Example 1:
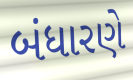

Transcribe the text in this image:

બંધારણે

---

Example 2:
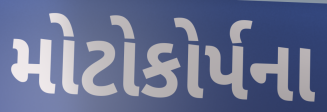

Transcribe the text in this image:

મોટોકોર્પના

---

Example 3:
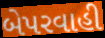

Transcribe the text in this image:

બેપરવાહી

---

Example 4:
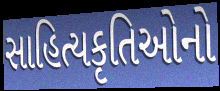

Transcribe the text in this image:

સાહિત્યકૃતિઓનો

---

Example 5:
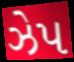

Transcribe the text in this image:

ઝેપ